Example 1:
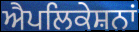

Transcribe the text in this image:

ਐਪਲਿਕੇਸ਼ਨਾਂ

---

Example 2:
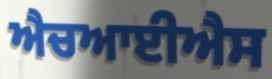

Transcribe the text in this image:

ਐਚਆਈਐਸ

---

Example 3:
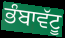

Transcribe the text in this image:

ਭੰਬਾਵੱਟੂ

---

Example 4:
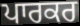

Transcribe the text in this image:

ਪਾਰਕਰ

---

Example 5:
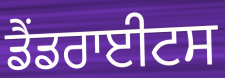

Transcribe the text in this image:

ਡੈਂਡਰਾਈਟਸ